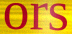
ors